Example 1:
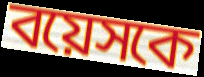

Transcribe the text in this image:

বয়েসকে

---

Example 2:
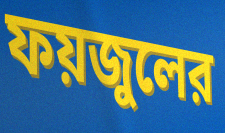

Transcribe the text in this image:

ফয়জুলের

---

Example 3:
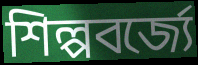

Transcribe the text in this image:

শিল্পবর্জ্যে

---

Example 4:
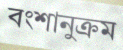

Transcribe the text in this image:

বংশানুক্রম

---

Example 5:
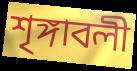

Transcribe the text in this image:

শৃঙ্গাবলী